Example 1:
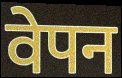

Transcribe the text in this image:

वेपन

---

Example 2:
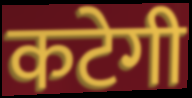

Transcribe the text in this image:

कटेगी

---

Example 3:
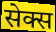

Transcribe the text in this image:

सेक्स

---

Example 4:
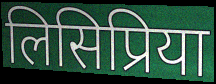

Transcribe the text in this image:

लिसिप्रिया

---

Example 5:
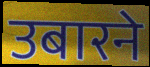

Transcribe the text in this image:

उबारने